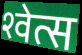
श्वेत्स